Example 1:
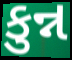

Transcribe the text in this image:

કુન્ન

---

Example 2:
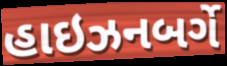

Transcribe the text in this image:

હાઇઝનબર્ગે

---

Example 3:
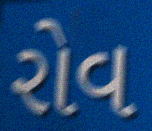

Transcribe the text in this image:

રોવ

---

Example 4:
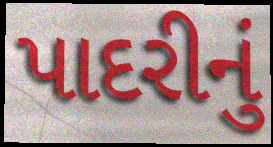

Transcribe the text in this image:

પાદરીનું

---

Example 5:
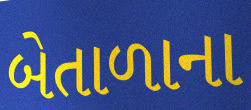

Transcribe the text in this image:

બેતાળાના